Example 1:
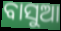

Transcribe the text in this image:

ବାସୁଆ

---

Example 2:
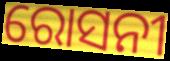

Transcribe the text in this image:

ରୋସନୀ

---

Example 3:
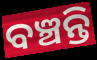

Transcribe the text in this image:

ବଞ୍ଚନ୍ତି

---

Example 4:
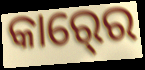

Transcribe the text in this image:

କାର୍‍ରେ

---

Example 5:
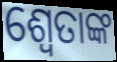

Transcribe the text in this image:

ଶ୍ଵେତାଙ୍କ